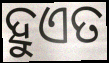
ହୁଏତ